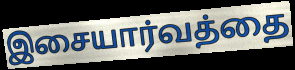
இசையார்வத்தை